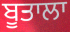
ਬੂਤਾਲਾ